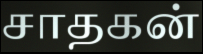
சாதகன்